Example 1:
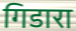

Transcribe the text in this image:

गिडारा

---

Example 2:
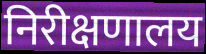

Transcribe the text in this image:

निरीक्षणालय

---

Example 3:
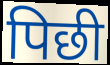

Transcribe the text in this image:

पिछी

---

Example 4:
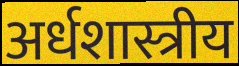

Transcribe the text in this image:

अर्धशास्त्रीय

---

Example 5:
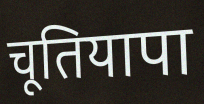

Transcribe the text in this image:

चूतियापा